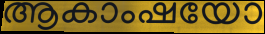
ആകാംഷയോ